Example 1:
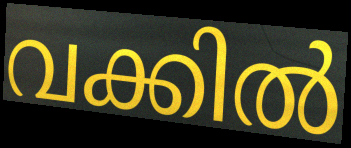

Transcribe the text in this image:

വക്കിൽ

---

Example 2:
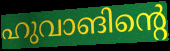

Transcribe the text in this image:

ഹുവാങിന്റെ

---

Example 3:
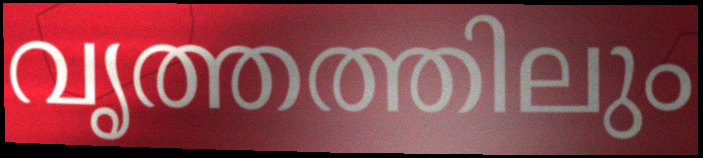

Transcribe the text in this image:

വൃത്തത്തിലും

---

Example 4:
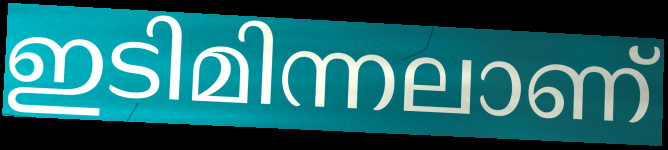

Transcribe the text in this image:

ഇടിമിന്നലാണ്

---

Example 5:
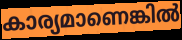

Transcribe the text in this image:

കാര്യമാണെങ്കിൽ